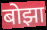
बोझा